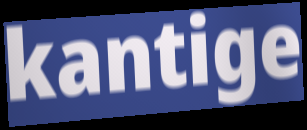
kantige